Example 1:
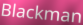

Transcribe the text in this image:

Blackman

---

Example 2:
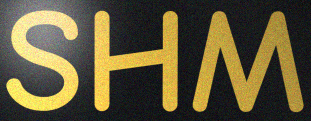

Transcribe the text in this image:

SHM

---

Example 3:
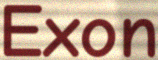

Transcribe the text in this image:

Exon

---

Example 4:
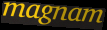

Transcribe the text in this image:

magnam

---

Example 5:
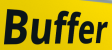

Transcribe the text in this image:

Buffer